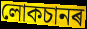
লোকচানৰ